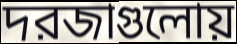
দরজাগুলোয়